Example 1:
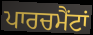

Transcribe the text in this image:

ਪਾਰਚਮੈਂਟਾਂ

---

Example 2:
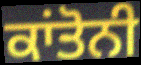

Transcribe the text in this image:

ਕਾਂਤੋਨੀ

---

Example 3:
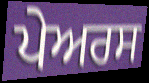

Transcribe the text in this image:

ਪੇਅਰਸ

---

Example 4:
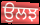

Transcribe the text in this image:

ਉਲਝ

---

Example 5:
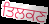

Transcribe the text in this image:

ਤਿਲਕਣ